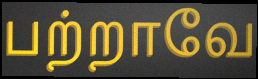
பற்றாவே